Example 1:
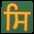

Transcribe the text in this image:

ਸਿ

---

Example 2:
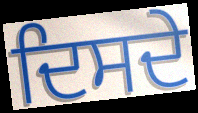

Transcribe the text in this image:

ਦਿਸਦੇ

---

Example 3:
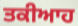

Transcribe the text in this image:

ਤਕੀਆਹ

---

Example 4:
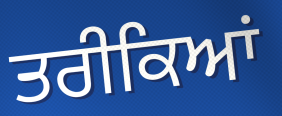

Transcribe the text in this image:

ਤਰੀਕਿਆਂ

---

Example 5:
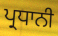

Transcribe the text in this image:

ਪ੍ਰਧਾਨੀ